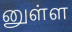
னுள்ள